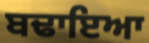
ਬਢਾਇਆ